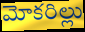
మోకరిల్లు